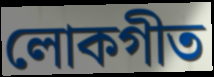
লোকগীত